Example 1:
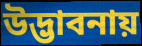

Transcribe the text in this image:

উদ্ভাবনায়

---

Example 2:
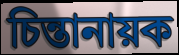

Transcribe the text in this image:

চিন্তানায়ক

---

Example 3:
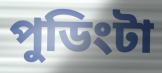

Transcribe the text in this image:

পুডিংটা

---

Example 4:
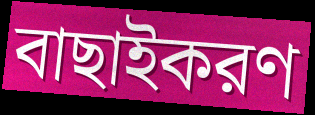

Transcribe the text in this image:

বাছাইকরণ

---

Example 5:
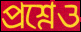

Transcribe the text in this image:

প্রশ্নেও